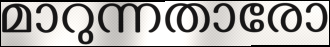
മാറുന്നതാരോ